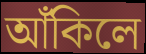
আঁকিলে